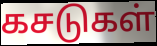
கசடுகள்